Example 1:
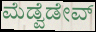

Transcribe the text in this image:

ಮೆಡ್ವೆಡೇವ್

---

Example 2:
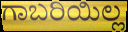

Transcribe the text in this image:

ಗಾಬರಿಯಿಲ್ಲ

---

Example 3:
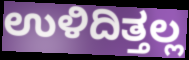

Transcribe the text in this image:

ಉಳಿದಿತ್ತಲ್ಲ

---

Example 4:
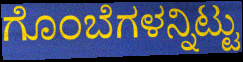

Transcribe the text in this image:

ಗೊಂಬೆಗಳನ್ನಿಟ್ಟು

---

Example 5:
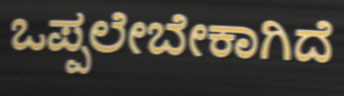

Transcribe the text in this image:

ಒಪ್ಪಲೇಬೇಕಾಗಿದೆ